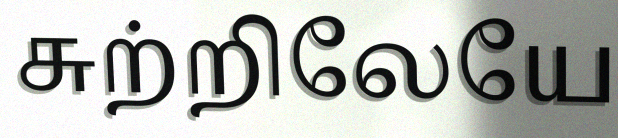
சுற்றிலேயே